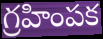
గ్రహింపక